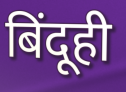
बिंदूही